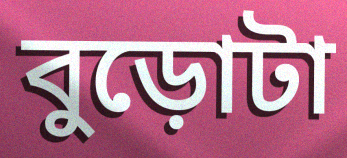
বুড়োটা